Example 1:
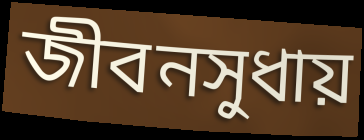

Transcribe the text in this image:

জীবনসুধায়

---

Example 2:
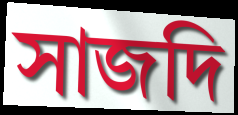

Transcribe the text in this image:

সাজদি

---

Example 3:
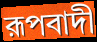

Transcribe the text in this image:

রূপবাদী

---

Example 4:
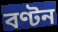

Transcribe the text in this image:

বণ্টন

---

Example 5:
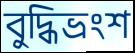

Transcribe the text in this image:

বুদ্ধিভ্রংশ